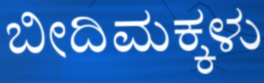
ಬೀದಿಮಕ್ಕಳು